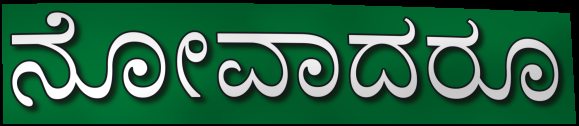
ನೋವಾದರೂ